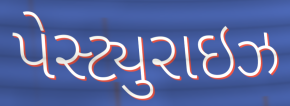
પેસ્ટ્યુરાઇઝ